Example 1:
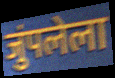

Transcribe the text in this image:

जुंपलेला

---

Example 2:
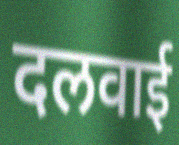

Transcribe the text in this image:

दलवाई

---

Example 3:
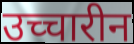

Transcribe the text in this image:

उच्चारीन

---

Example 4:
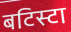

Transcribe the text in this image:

बटिस्टा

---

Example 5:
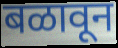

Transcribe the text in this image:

बळावून